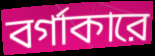
বর্গাকারে